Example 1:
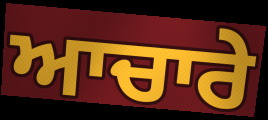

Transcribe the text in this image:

ਆਚਾਰੇ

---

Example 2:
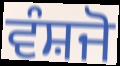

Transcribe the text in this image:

ਵੰਸ਼ਜੋ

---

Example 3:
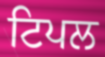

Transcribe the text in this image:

ਟਿਪਲ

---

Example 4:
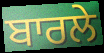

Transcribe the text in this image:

ਬਾਰਲੇ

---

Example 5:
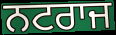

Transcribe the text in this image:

ਨਟਰਾਜ